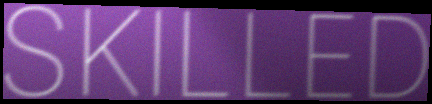
SKILLED